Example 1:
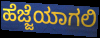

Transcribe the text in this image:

ಹೆಜ್ಜೆಯಾಗಲಿ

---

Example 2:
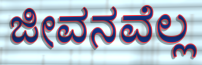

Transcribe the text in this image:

ಜೀವನವೆಲ್ಲ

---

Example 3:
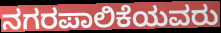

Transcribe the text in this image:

ನಗರಪಾಲಿಕೆಯವರು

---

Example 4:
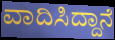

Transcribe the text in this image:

ವಾದಿಸಿದ್ದಾನೆ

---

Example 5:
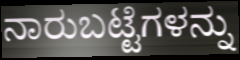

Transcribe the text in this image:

ನಾರುಬಟ್ಟೆಗಳನ್ನು